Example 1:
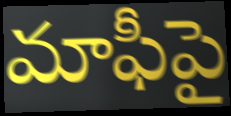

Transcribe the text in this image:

మాఫీపై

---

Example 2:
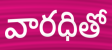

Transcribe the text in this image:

వారధితో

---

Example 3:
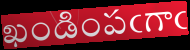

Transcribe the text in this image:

ఖండింపఁగాఁ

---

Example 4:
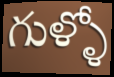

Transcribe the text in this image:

గుళ్ళో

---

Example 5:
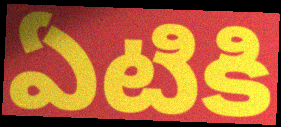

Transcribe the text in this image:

ఏటికి